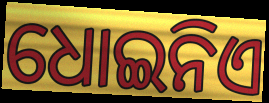
ଧୋଇନିଏ